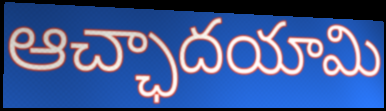
ఆచ్ఛాదయామి